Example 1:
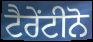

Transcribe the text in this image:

ਟੈਰੇਂਟੀਨੋ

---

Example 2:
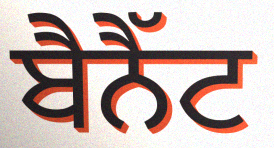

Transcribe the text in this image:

ਬੈਨੈੱਟ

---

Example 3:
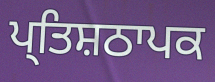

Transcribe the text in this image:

ਪ੍ਤਿਸ਼ਠਾਪਕ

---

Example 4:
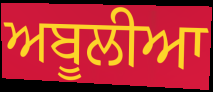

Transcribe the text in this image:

ਅਬੂਲੀਆ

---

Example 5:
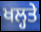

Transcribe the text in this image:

ਖਲ੍ਹਤੇ